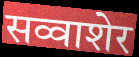
सव्वाशेर